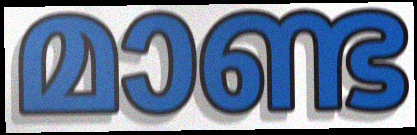
മാണ്ട